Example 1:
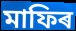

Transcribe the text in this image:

মাফিৰ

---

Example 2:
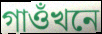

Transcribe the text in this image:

গাওঁখনে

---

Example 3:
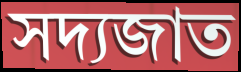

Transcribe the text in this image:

সদ্যজাত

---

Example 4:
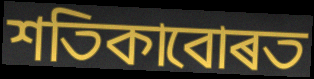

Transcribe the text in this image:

শতিকাবোৰত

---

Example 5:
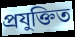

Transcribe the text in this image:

প্ৰযুক্তিত